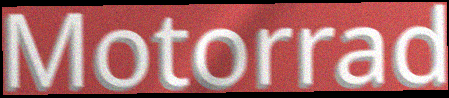
Motorrad